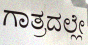
ಗಾತ್ರದಲ್ಲೇ